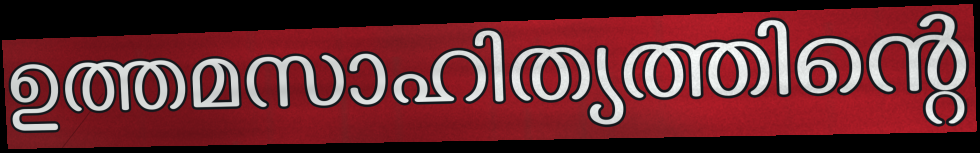
ഉത്തമസാഹിത്യത്തിന്റെ